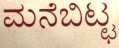
ಮನೆಬಿಟ್ಟ